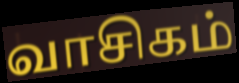
வாசிகம்